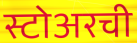
स्टोअरची